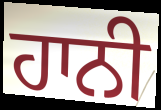
ਹਾਨੀ